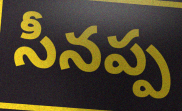
సీనప్ప